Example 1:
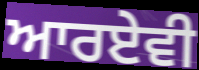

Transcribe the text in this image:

ਆਰਏਵੀ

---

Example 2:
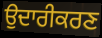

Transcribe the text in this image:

ਉਦਾਰੀਕਰਣ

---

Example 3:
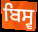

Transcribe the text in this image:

ਬਿਸ੍ਵ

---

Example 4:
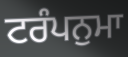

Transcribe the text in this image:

ਟਰੰਪਨੁਮਾ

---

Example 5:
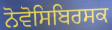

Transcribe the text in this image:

ਨੋਵੋਸਿਬਿਰਸਕ